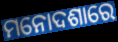
ମନୋଦଶାରେ